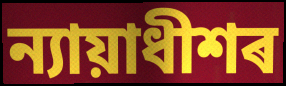
ন্যায়াধীশৰ